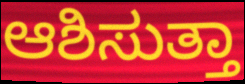
ಆಶಿಸುತ್ತಾ